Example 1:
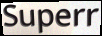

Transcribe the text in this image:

Superr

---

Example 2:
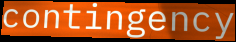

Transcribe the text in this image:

contingency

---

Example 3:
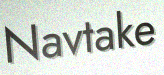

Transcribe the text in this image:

Navtake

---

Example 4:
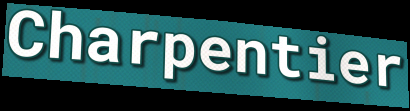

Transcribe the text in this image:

Charpentier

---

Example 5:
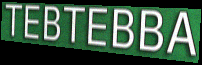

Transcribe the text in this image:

TEBTEBBA